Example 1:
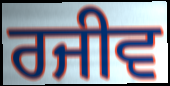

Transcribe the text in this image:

ਰਜੀਵ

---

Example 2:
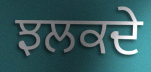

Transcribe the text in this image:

ਝਲਕਦੇ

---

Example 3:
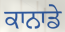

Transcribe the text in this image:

ਕਾਨਾਡੇ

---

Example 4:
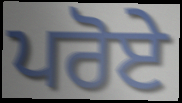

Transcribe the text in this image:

ਪਰੋਏ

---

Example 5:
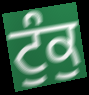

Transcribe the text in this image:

ਟੁੰਕੁ